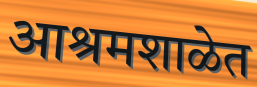
आश्रमशाळेत